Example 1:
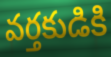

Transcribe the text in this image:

వర్తకుడికి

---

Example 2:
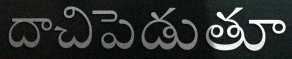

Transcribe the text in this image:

దాచిపెడుతూ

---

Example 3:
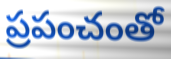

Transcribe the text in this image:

ప్రపంచంతో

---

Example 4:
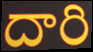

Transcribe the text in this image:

దారి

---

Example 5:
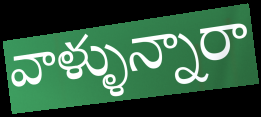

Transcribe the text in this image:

వాళ్ళున్నారా